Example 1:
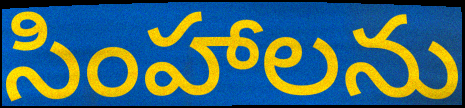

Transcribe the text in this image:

సింహాలను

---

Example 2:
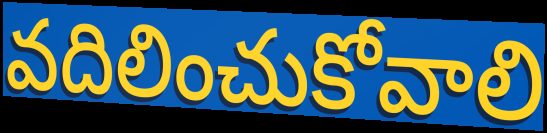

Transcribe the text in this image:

వదిలించుకోవాలి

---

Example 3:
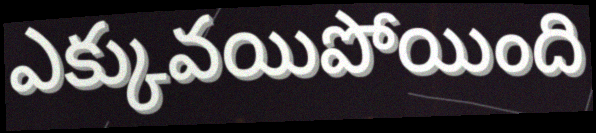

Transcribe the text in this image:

ఎక్కువయిపోయింది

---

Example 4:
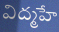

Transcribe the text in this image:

విద్మహే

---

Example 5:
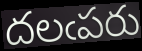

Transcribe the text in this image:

దలఁపరు